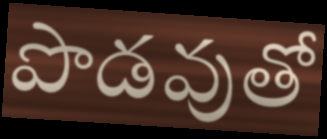
పొడవుతో